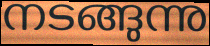
നടങ്ങുന്നു